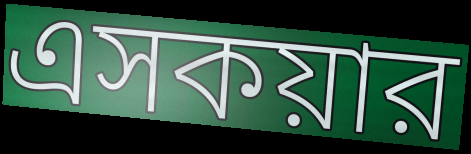
এসকয়ার